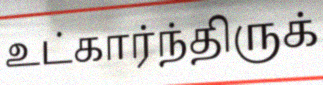
உட்கார்ந்திருக்